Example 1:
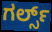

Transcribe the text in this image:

ಗರ್ಲ್ಸ್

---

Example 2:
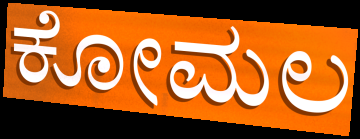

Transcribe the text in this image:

ಕೋಮಲ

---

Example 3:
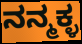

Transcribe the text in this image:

ನನ್ಮಕ್ಳ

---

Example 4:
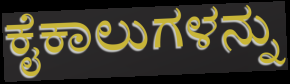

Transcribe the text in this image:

ಕೈಕಾಲುಗಳನ್ನು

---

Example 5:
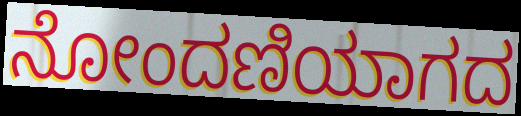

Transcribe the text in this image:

ನೋಂದಣಿಯಾಗದ